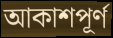
আকাশপূর্ণ